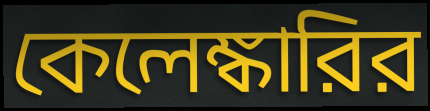
কেলেঙ্কারির